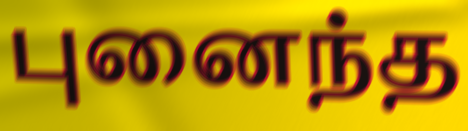
புனைந்த